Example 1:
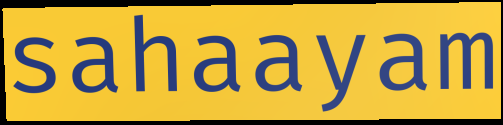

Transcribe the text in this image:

sahaayam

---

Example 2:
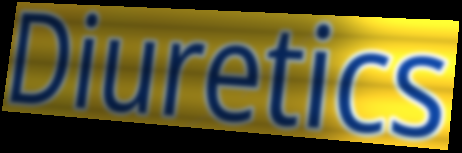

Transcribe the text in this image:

Diuretics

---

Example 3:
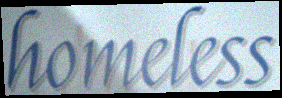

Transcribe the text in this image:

homeless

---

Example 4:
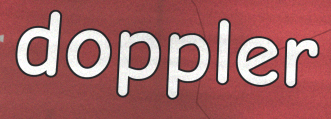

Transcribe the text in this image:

doppler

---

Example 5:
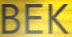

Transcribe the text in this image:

BEK